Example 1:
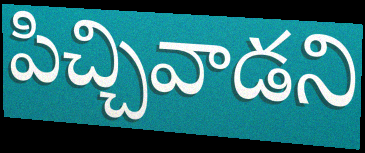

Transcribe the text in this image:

పిచ్చివాడని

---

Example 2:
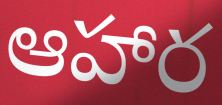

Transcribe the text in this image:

ఆహార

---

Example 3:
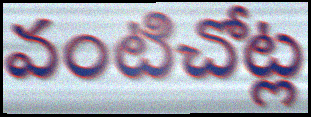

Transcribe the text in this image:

వంటిచోట్ల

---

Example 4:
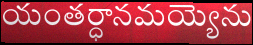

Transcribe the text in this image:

యంతర్ధానమయ్యెను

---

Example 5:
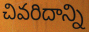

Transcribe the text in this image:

చివరిదాన్ని